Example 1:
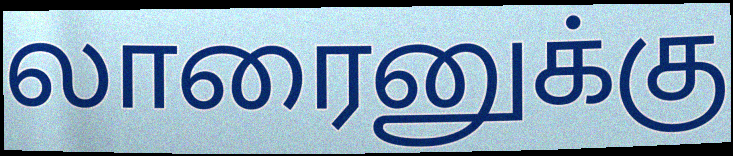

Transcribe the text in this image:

லாரைனுக்கு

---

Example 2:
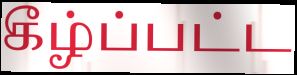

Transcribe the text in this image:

கீழ்ப்பட்ட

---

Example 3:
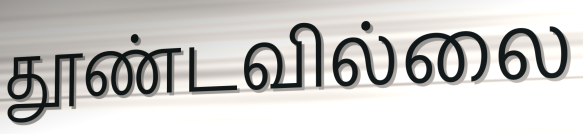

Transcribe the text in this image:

தூண்டவில்லை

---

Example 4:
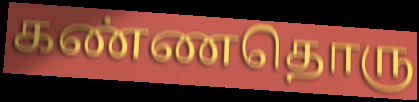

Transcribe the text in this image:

கண்ணதொரு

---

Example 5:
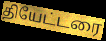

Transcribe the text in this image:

தியேட்டரை